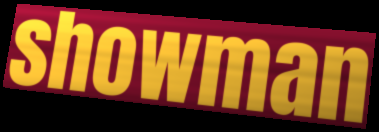
showman